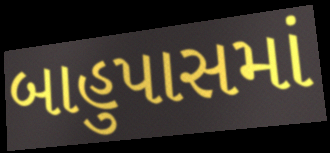
બાહુપાસમાં